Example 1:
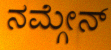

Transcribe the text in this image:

ನಮ್ಗೇನ್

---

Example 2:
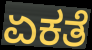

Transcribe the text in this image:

ಏಕತೆ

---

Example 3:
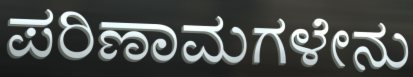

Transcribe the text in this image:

ಪರಿಣಾಮಗಳೇನು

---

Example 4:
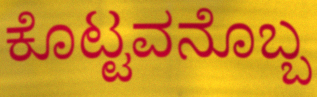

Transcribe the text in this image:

ಕೊಟ್ಟವನೊಬ್ಬ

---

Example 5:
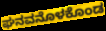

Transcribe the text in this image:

ಘನವನೊಳಕೊಂಡ